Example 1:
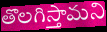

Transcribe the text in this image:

తొలగిస్తామని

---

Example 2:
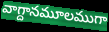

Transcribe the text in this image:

వాగ్దానమూలముగా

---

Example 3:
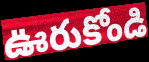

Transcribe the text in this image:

ఊరుకోండి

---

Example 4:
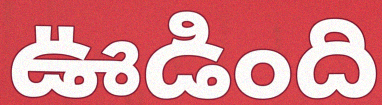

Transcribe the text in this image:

ఊడింది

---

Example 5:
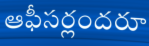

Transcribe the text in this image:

ఆఫీసర్లందరూ